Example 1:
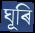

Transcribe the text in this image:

ঘূৰি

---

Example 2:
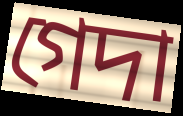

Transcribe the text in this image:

গেদা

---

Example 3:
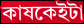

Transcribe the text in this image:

কাষকেইটা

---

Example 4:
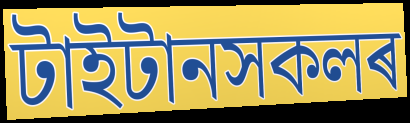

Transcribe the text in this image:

টাইটানসকলৰ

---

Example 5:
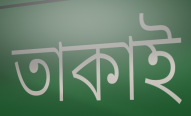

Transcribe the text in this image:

তাকাই